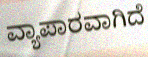
ವ್ಯಾಪಾರವಾಗಿದೆ